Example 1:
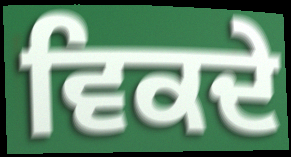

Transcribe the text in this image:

ਵਿਕਦੇ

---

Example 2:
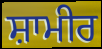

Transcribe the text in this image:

ਸ਼ਾਮੀਰ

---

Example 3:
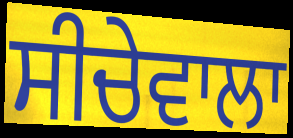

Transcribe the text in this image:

ਸੀਚੇਵਾਲਾ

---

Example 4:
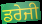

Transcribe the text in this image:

ਡਰੇਜੀ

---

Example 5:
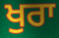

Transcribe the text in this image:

ਖੁਰਾ